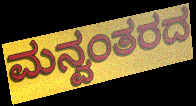
ಮನ್ವಂತರದ